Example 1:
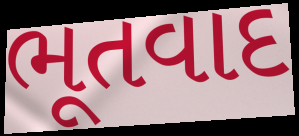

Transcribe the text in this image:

ભૂતવાદ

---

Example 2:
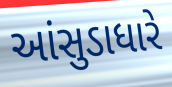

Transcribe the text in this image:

આંસુડાધારે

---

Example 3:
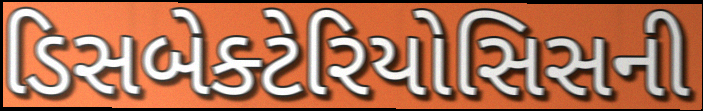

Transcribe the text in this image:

ડિસબેક્ટેરિયોસિસની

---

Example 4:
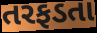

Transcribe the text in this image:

તરફડતા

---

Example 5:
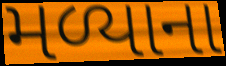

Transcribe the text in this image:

મળ્યાના